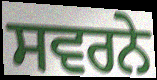
ਸਵਰਨੇ